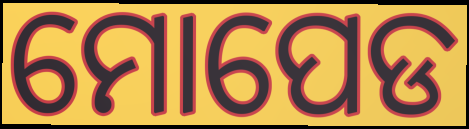
ମୋପେଡ